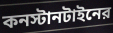
কনস্টানটাইনের